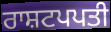
ਰਾਸ਼ਟਪਪਤੀ